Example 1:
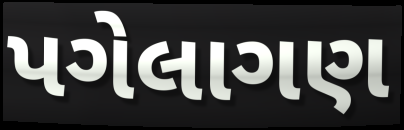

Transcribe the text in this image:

પગેલાગણ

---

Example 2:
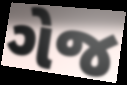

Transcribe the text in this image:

ગેજ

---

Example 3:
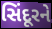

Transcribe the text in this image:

સિંદૂરને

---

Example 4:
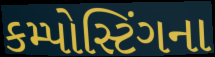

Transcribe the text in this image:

કમ્પોસ્ટિંગના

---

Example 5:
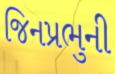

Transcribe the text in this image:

જિનપ્રભુની